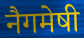
नैगमेषी